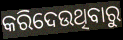
କରିଦେଉଥିବାରୁ